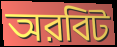
অরবিট